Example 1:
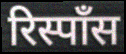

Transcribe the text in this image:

रिस्पॉंस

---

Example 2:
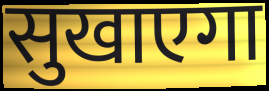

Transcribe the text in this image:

सुखाएगा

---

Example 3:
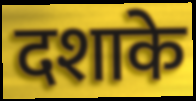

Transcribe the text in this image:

दशाके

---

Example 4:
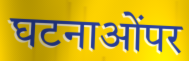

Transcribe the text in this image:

घटनाओंपर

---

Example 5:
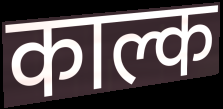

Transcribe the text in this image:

काल्क